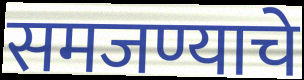
समजण्याचे